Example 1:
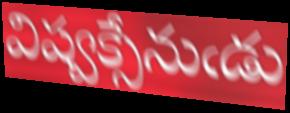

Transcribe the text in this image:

విష్వక్సేనుఁడు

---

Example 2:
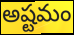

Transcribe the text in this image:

అష్టమం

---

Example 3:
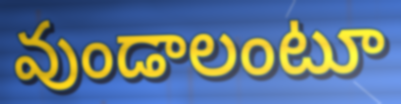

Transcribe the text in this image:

వుండాలంటూ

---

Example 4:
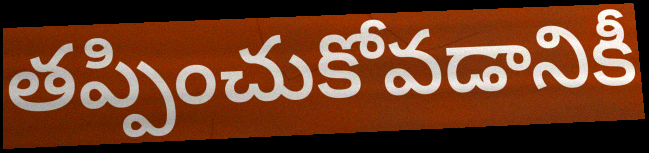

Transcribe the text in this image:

తప్పించుకోవడానికీ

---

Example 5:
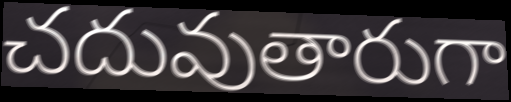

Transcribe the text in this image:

చదువుతారుగా